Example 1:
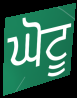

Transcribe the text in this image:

ਘੋਟੂ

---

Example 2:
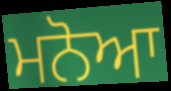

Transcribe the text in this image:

ਮਨੋਆ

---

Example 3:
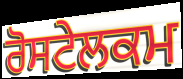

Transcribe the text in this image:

ਰੋਸਟੇਲਕਮ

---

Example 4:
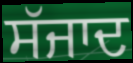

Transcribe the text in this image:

ਸੱਜਾਦ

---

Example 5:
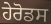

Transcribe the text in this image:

ਹੇਰੋਡਸ